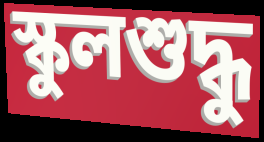
স্কুলশুদ্ধু